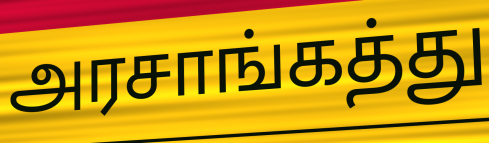
அரசாங்கத்து